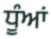
ਧੂੰਆਂ